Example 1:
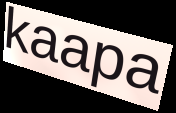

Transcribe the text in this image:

kaapa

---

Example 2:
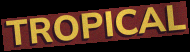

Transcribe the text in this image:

TROPICAL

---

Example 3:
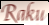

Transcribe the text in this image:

Raku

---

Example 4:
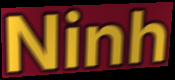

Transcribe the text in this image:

Ninh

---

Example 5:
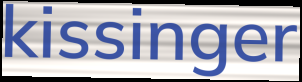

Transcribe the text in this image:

kissinger